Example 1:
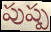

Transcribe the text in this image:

పుష్ప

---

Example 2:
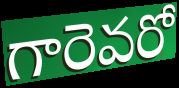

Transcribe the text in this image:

గారెవరో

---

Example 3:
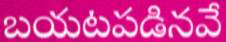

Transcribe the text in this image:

బయటపడినవే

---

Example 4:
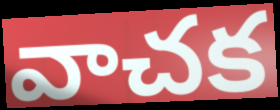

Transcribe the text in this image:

వాచక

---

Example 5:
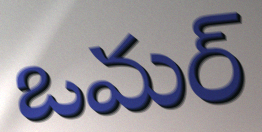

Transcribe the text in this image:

ఒమర్